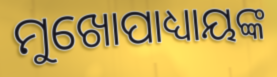
ମୁଖୋପାଧ୍ୟାୟଙ୍କ